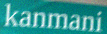
kanmani